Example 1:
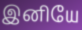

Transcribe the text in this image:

இனியே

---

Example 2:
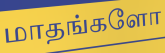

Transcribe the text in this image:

மாதங்களோ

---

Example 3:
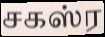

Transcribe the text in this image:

சகஸ்ர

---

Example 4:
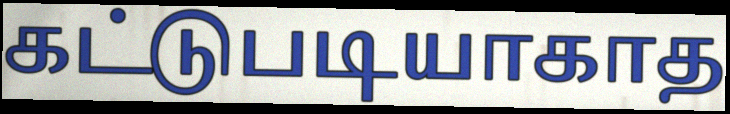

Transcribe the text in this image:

கட்டுபடியாகாத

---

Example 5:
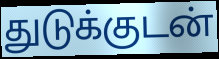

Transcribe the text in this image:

துடுக்குடன்